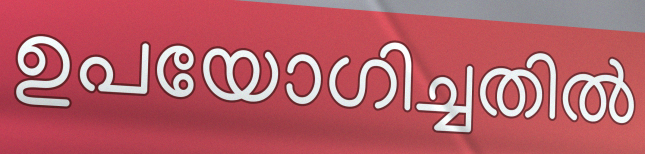
ഉപയോഗിച്ചതിൽ